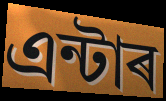
এন্টাৰ